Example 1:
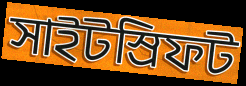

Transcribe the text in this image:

সাইটস্রিফট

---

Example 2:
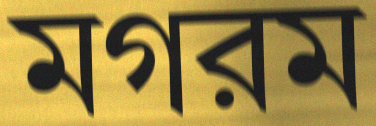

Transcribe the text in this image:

মগরম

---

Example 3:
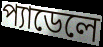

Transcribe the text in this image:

প্যাডেলে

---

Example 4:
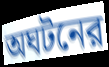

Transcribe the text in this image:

অঘটনের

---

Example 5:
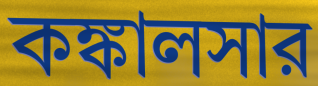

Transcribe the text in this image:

কঙ্কালসার